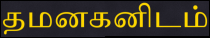
தமனகனிடம்